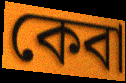
কেবা